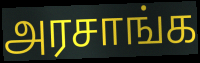
அரசாங்க